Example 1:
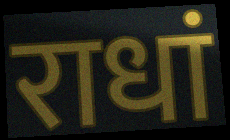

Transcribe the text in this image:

राधां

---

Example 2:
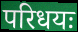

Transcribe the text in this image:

परिधयः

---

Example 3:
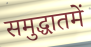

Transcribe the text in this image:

समुद्धातमें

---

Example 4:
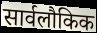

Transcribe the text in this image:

सार्वलौकिक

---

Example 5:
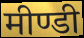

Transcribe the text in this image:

मीण्‍डी